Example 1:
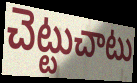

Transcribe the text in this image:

చెట్టుచాటు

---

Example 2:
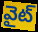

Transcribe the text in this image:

వైట్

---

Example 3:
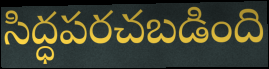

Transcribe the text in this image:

సిద్ధపరచబడింది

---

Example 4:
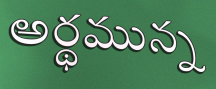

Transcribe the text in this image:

అర్థమున్న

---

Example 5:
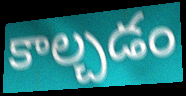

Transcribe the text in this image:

కాల్చడం